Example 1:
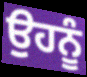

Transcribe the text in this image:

ਉਹਨੂੰ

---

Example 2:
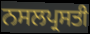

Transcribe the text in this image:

ਨਸਲਪ੍ਰਸਤੀ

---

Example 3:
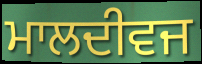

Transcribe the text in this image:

ਮਾਲਦੀਵਜ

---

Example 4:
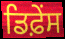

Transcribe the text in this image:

ਡਿਫ਼ੇੰਸ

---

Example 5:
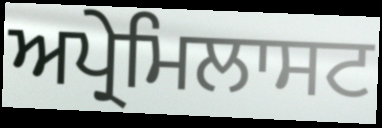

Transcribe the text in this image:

ਅਪ੍ਰੇਮਿਲਾਸਟ